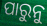
ପାରୁନୁ